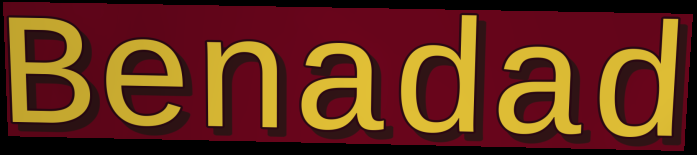
Benadad